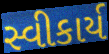
સ્વીકાર્ય